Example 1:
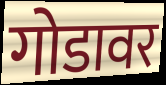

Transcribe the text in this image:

गोडावर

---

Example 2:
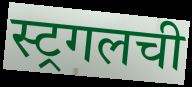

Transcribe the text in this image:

स्ट्रगलची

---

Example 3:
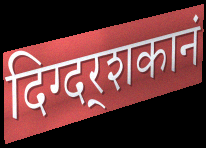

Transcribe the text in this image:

दिग्दर्शकानं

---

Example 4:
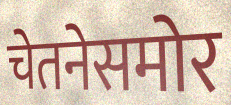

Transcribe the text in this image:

चेतनेसमोर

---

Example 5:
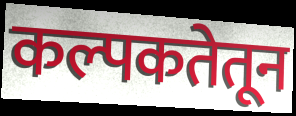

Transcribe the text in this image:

कल्पकतेतून